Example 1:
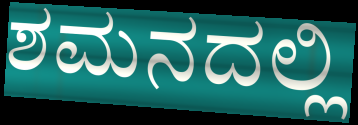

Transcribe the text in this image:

ಶಮನದಲ್ಲಿ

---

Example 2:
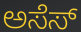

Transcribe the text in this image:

ಅಸೆಸ್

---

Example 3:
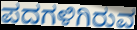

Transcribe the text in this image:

ಪದಗಳಿಗಿರುವ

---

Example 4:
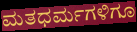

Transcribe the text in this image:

ಮತಧರ್ಮಗಳಿಗೂ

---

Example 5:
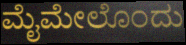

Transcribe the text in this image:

ಮೈಮೇಲೊಂದು